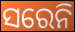
ସରେନି